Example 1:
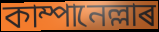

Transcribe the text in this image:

কাম্পানেল্লাৰ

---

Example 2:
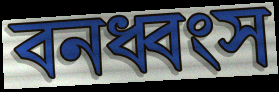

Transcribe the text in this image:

বনধ্বংস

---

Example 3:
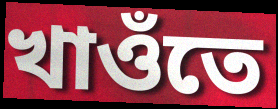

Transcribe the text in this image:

খাওঁতে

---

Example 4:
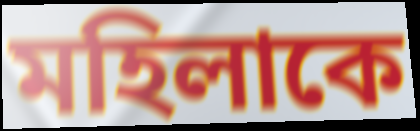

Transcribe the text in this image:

মহিলাকে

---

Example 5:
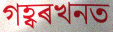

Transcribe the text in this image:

গহ্বৰখনত